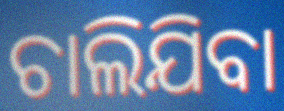
ଚାଲିଯିବା